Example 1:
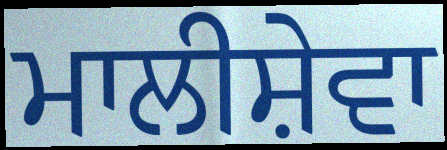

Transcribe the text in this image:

ਮਾਲੀਸ਼ੇਵਾ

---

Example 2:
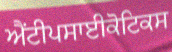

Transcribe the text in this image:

ਐਂਟੀਪਸਾਈਕੋਟਿਕਸ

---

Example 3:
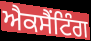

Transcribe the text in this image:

ਐਕਸੈਂਟਿੰਗ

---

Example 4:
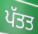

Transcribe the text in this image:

ਪੱਤਤ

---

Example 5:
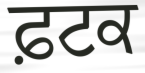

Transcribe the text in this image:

ਫ਼ਟਕ